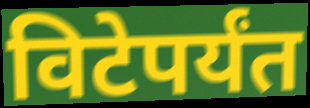
विटेपर्यंत